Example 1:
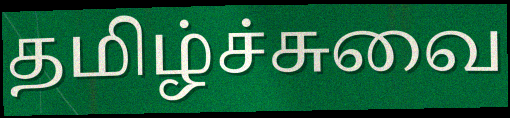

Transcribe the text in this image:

தமிழ்ச்சுவை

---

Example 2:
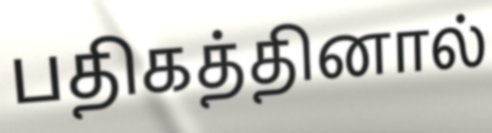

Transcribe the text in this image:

பதிகத்தினால்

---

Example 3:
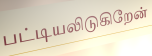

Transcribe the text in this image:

பட்டியலிடுகிறேன்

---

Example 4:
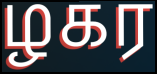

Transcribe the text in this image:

ழகர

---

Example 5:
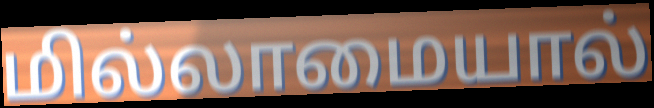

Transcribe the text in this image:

மில்லாமையால்